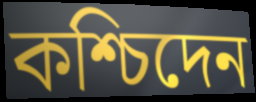
কশ্চিদেন